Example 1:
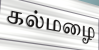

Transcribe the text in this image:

கல்மழை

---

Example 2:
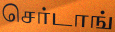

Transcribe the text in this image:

செர்டாங்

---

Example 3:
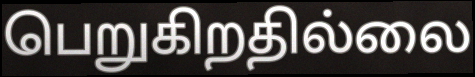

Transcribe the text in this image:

பெறுகிறதில்லை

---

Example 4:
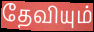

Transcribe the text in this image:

தேவியும்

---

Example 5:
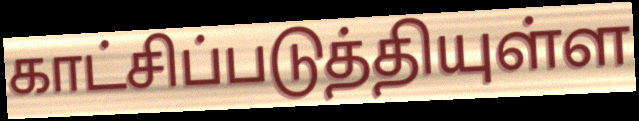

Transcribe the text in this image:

காட்சிப்படுத்தியுள்ள